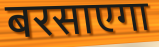
बरसाएगा